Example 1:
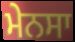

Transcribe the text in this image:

ਮੇਨਸਾ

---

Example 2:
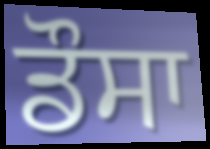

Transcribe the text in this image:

ਡੌਸਾ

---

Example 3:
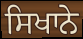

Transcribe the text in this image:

ਸਿਖਾਨੇ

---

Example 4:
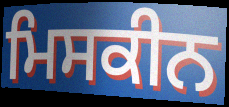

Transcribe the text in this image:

ਮਿਸਕੀਨ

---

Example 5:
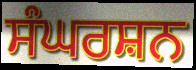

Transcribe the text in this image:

ਸੰਘਰਸ਼ਨ